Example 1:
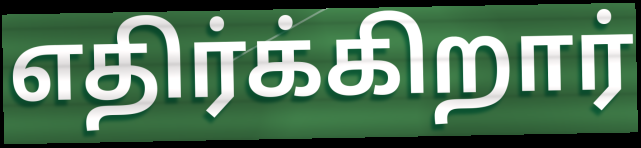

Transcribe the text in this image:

எதிர்க்கிறார்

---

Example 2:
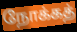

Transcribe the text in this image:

நோக்கத்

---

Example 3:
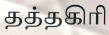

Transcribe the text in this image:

தத்தகிரி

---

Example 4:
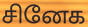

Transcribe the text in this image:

சினேக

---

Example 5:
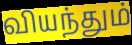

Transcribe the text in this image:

வியந்தும்